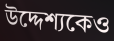
উদ্দেশ্যকেও